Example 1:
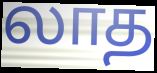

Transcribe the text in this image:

லாத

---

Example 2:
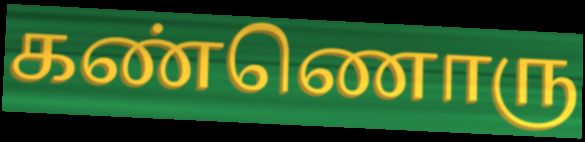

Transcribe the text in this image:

கண்ணொரு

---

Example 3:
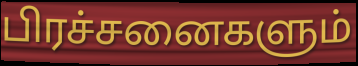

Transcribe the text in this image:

பிரச்சனைகளும்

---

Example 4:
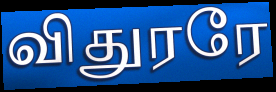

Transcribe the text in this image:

விதுரரே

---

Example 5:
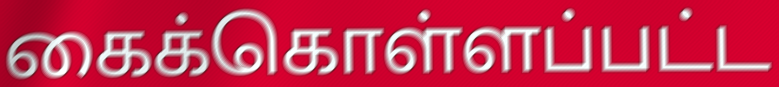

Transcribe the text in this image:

கைக்கொள்ளப்பட்ட